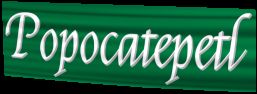
Popocatepetl